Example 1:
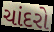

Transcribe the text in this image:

ચાંદરો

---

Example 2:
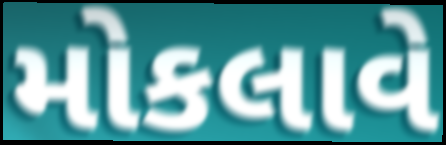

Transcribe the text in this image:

મોકલાવે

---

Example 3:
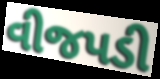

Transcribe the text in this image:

વીજપડી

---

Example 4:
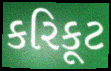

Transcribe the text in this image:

કરિકૂટ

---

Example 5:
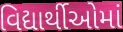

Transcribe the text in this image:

વિદ્યાર્થીઓમાં